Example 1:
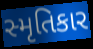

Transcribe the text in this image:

સ્મૃતિકાર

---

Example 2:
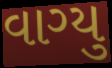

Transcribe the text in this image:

વાગ્યુ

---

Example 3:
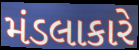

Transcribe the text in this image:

મંડલાકારે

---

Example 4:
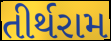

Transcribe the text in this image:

તીર્થરામ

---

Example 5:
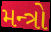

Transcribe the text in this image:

મન્ત્રો